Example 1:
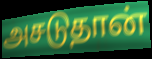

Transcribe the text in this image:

அசடுதான்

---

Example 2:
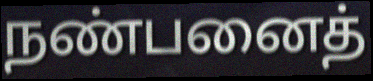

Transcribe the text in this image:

நண்பனைத்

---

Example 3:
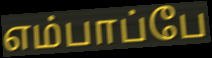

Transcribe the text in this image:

எம்பாப்பே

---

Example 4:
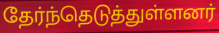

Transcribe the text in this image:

தேர்ந்தெடுத்துள்ளனர்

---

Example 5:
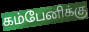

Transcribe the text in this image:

கம்பேனிக்கு